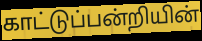
காட்டுப்பன்றியின்